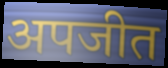
अपजीत